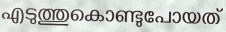
എടുത്തുകൊണ്ടുപോയത്